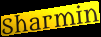
Sharmin